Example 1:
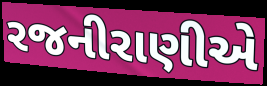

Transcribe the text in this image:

રજનીરાણીએ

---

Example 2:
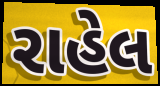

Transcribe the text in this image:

રાહેલ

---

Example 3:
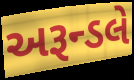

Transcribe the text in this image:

અરૂન્ડલે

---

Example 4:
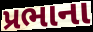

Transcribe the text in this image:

પ્રભાના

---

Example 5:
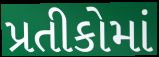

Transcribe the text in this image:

પ્રતીકોમાં